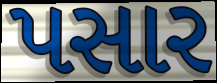
પસાર